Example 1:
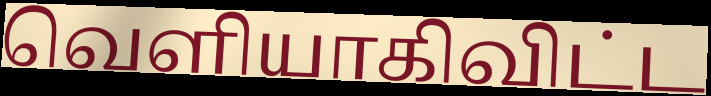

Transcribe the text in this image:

வெளியாகிவிட்ட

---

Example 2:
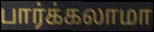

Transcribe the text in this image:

பார்க்கலாமா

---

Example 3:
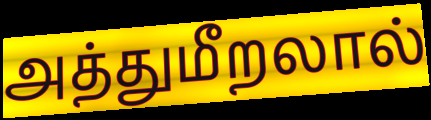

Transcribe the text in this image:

அத்துமீறலால்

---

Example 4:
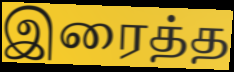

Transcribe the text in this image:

இரைத்த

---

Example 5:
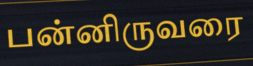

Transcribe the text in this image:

பன்னிருவரை